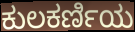
ಕುಲಕರ್ಣಿಯ